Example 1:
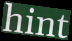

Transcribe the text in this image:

hint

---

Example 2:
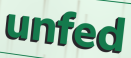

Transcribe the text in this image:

unfed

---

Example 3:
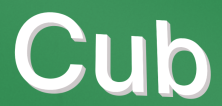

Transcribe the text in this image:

Cub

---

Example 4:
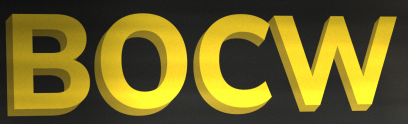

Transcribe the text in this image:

BOCW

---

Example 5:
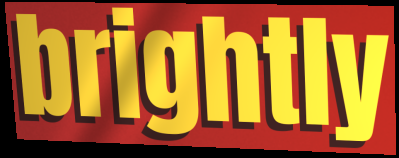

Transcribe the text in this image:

brightly